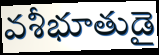
వశీభూతుడై